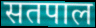
सतपाल